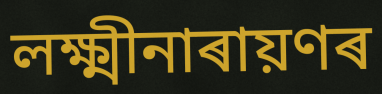
লক্ষ্মীনাৰায়ণৰ